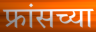
फ्रांसच्या